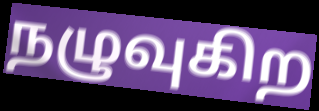
நழுவுகிற